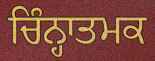
ਚਿੰਨ੍ਹਾਤਮਕ